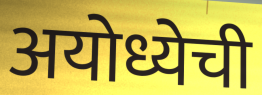
अयोध्येची